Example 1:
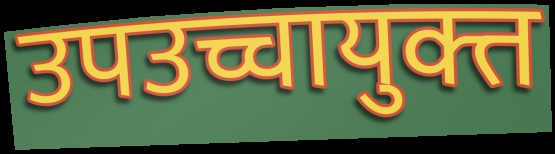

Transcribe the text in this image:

उपउच्चायुक्त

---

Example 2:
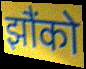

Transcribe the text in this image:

झौंको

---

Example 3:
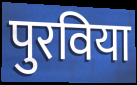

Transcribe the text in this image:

पुरविया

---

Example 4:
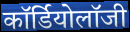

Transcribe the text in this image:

कॉर्डियोलॉजी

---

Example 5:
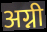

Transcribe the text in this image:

अग्नी